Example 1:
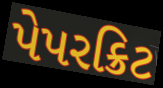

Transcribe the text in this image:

પેપરક્રિટ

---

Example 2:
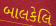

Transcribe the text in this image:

બાલકેલિ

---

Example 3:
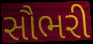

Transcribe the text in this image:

સૌભરી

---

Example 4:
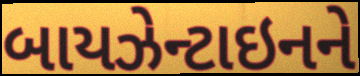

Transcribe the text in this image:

બાયઝેન્ટાઇનને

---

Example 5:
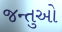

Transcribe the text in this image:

જન્તુઓ